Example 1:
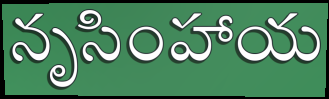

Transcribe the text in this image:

నృసింహాయ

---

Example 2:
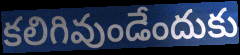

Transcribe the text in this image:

కలిగివుండేందుకు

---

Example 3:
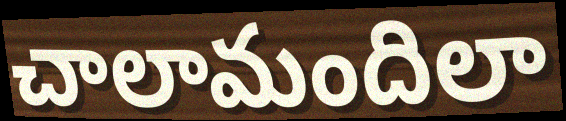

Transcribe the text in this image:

చాలామందిలా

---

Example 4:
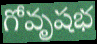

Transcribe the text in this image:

గోవృషభ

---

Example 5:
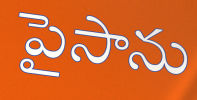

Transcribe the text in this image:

పైసాను